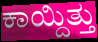
ಕಾಯ್ದಿತ್ತು